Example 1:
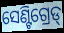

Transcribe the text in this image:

ସେଣ୍ଟିଗ୍ରେଡ୍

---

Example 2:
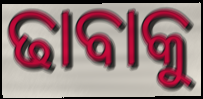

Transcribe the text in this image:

ଢାବାକୁ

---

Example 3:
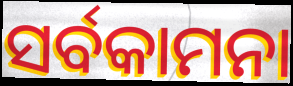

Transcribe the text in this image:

ସର୍ବକାମନା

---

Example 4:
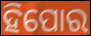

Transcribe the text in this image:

ହିପୋର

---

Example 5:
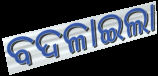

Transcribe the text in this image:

ବଦଳାଇଲା